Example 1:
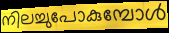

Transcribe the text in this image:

നിലച്ചുപോകുമ്പോൾ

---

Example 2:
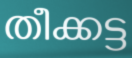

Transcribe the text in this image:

തീക്കട്ട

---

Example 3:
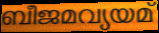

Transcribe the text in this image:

ബീജമവ്യയമ്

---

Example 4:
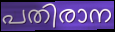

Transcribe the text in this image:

പതിരാന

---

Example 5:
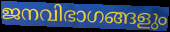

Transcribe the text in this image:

ജനവിഭാഗങ്ങളും